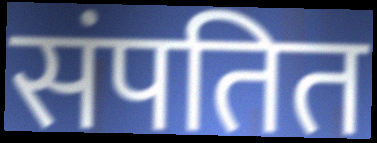
संपतित